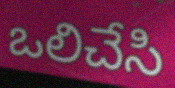
ఒలిచేసి